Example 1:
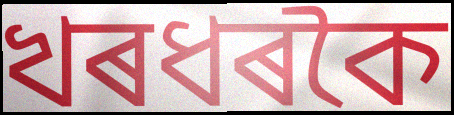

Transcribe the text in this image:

খৰধৰকৈ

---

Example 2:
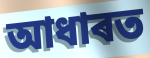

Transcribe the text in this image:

আধাৰত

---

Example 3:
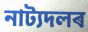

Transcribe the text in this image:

নাট্যদলৰ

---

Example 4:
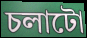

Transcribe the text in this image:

চলাটো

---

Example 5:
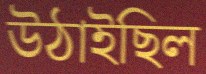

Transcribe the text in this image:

উঠাইছিল